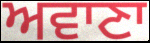
ਅਵਾਣਾ